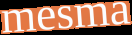
mesma